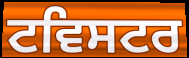
ਟਵਿਸਟਰ